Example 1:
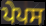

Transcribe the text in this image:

ਪੇਪਸ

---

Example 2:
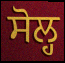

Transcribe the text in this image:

ਸੋਲ੍ਹ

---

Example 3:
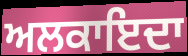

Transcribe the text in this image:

ਅਲਕਾਇਦਾ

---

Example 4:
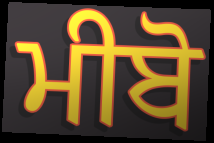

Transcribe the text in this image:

ਮੀਬੋ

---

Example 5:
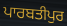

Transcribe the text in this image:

ਪਾਰਬਤੀਪੁਰ